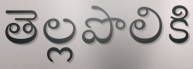
తెల్లపొలికి